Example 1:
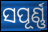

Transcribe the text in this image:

ସପୂର୍ଣ୍ଣ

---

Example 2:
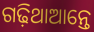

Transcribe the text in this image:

ଗଢ଼ିଥାଆନ୍ତେ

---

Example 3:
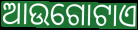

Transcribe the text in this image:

ଆଉଗୋଟାଏ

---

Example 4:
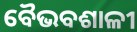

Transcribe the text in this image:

ବୈଭବଶାଳୀ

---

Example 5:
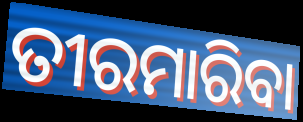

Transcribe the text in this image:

ତୀରମାରିବା